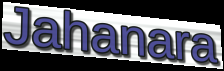
Jahanara